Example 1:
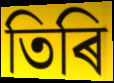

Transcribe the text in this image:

তিৰি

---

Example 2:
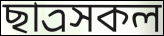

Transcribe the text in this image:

ছাত্ৰসকল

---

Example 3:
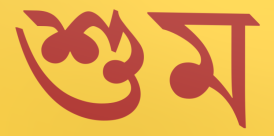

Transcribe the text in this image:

শুম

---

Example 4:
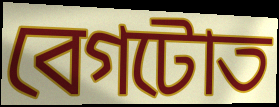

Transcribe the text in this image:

বেগটোত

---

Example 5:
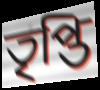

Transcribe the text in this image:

তৃপ্তি